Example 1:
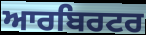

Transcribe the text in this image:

ਆਰਬਿਰਟਰ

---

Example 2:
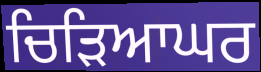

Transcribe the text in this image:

ਚਿੜਿਆਘਰ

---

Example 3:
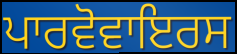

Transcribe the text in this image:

ਪਾਰਵੋਵਾਇਰਸ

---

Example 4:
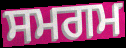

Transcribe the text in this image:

ਸਮਗਮ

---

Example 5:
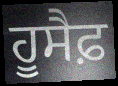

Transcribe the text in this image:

ਹੂਸੈਫ਼